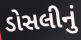
ડોસલીનું